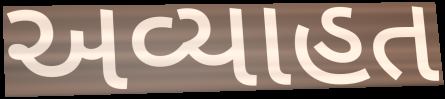
અવ્યાહત